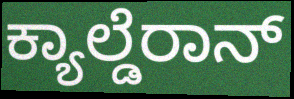
ಕ್ಯಾಲ್ಡೆರಾನ್